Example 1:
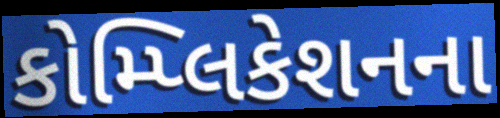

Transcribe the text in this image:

કોમ્પ્લિકેશનના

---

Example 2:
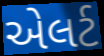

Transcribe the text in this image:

એલર્ટ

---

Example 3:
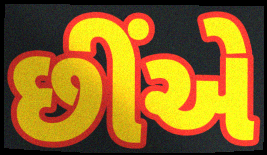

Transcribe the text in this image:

છીંએ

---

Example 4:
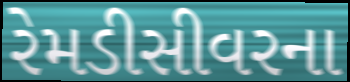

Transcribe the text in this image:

રેમડીસીવરના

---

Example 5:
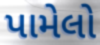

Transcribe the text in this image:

પામેલો